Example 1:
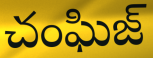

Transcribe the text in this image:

చంఘిజ్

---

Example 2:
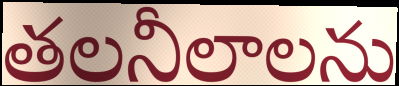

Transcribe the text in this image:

తలనీలాలను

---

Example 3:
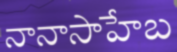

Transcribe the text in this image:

నానాసాహేబ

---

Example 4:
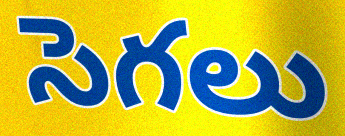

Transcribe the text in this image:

సెగలు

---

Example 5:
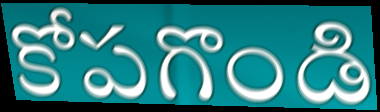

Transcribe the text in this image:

కోపగొండి